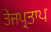
ਤੇਜਪ੍ਰਤਾਪ